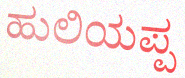
ಹುಲಿಯಪ್ಪ